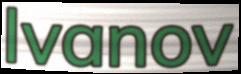
Ivanov